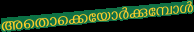
അതൊക്കെയോർക്കുമ്പോൾ